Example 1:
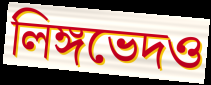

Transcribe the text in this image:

লিঙ্গভেদও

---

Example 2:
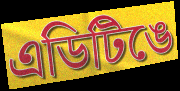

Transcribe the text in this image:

এডিটিঙে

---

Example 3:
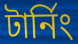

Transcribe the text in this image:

টার্নিং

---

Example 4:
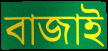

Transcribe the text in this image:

বাজাই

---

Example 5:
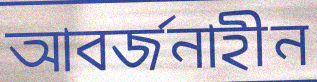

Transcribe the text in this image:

আবর্জনাহীন